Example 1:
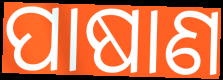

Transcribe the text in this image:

ପାଷାଣ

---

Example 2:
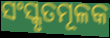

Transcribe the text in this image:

ସଂସ୍କୃତମୂଳକ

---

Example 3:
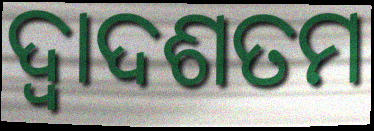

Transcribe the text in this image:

ଦ୍ୱାଦଶତମ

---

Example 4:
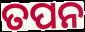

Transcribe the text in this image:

ତପନ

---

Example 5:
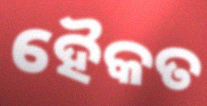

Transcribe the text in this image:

ହୈକତ